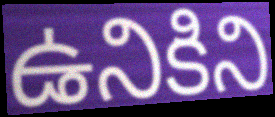
ఉనికిని